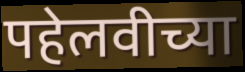
पहेलवीच्या